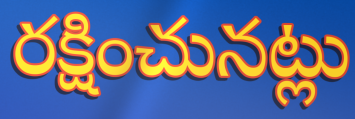
రక్షించునట్లు